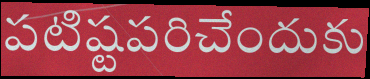
పటిష్టపరిచేందుకు